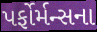
પર્ફોર્મન્સના